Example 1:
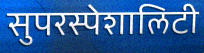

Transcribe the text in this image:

सुपरस्पेशालिटी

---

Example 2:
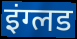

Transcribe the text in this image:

इंग्लड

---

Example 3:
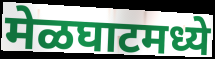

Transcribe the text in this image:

मेळघाटमध्ये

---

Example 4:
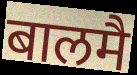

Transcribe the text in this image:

बालमै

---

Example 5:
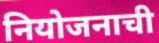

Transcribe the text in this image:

नियोजनाची